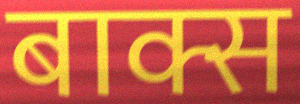
बाक्स